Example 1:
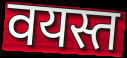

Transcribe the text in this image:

वयस्त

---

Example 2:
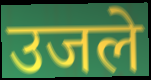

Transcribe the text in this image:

उजले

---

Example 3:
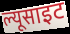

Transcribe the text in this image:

ल्यूसाइट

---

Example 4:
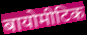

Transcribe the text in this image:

बायोमीटिक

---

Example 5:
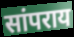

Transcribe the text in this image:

सांपराय